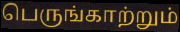
பெருங்காற்றும்